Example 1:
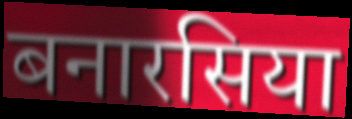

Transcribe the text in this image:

बनारसिया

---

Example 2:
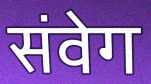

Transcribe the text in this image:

संवेग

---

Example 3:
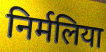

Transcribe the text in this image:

निर्मलिया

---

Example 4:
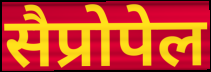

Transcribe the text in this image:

सैप्रोपेल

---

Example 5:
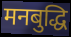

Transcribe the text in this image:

मनबुद्धि